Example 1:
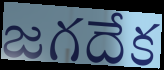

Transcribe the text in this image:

జగదేక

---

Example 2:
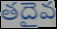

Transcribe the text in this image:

తదైవ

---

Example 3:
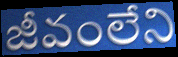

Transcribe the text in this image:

జీవంలేని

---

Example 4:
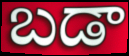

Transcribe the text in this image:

బడా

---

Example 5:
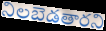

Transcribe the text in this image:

నిలబెడతారని